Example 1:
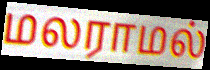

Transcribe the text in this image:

மலராமல்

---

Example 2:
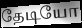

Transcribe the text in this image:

தேடியோ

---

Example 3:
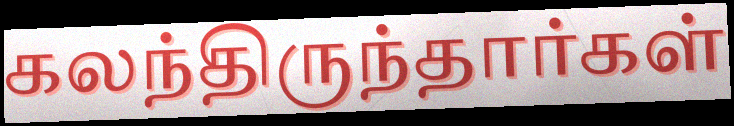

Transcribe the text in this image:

கலந்திருந்தார்கள்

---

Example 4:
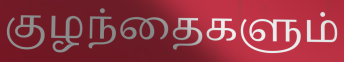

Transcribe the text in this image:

குழந்தைகளும்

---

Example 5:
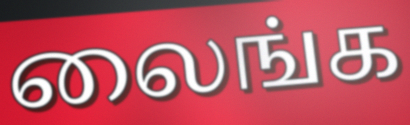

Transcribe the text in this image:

லைங்க